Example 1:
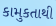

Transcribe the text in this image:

કામુકતાથી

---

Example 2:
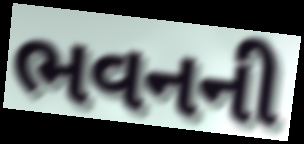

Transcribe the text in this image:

ભવનની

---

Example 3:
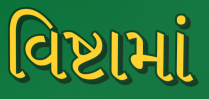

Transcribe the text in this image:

વિષ્ટામાં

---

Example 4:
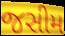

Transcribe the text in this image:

જસીમ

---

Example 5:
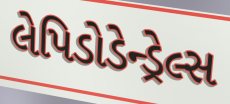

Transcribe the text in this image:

લેપિડોડેન્ડ્રેલ્સ